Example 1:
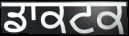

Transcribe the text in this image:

ਡਾਕਟਕ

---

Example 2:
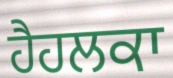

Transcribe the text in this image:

ਹੈਹਲਕਾ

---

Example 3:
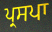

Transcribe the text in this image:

ਪ੍ਰਸਪਾ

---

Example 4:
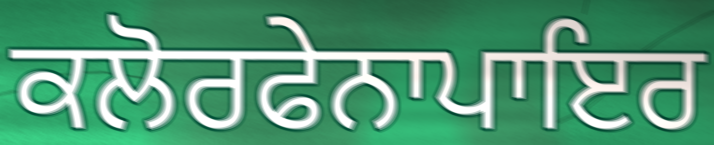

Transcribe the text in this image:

ਕਲੋਰਫੇਨਾਪਾਇਰ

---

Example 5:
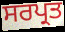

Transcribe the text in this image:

ਸਰਪ੍ਰਤ